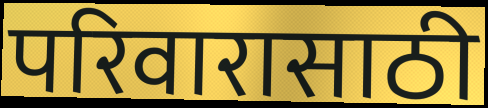
परिवारासाठी